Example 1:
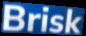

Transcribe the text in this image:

Brisk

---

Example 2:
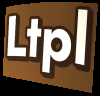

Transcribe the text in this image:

Ltpl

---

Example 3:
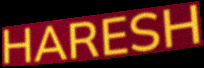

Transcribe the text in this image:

HARESH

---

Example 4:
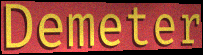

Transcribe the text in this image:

Demeter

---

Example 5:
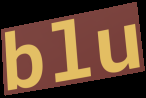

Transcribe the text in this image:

blu